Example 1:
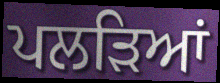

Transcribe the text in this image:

ਪਲੜਿਆਂ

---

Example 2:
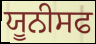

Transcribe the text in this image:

ਯੂਨੀਸਫ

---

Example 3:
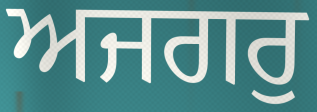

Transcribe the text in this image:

ਅਜਗਰੁ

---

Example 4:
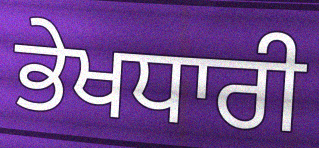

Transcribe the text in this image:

ਭੇਖਧਾਰੀ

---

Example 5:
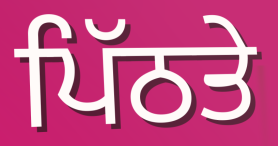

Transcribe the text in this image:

ਪਿੱਠਤੇ